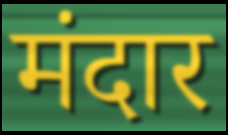
मंदार